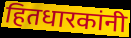
हितधारकांनी